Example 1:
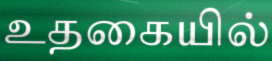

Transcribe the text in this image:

உதகையில்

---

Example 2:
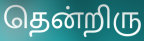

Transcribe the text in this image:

தென்றிரு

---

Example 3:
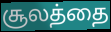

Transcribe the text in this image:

சூலத்தை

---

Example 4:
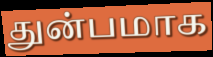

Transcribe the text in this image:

துன்பமாக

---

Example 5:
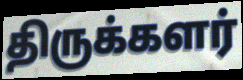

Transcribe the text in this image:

திருக்களர்